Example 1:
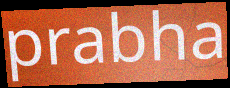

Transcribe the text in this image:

prabha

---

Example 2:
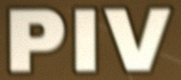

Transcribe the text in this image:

PIV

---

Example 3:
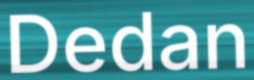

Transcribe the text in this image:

Dedan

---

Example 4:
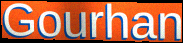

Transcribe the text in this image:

Gourhan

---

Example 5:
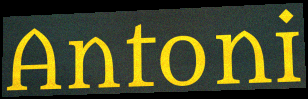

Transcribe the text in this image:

Antoni